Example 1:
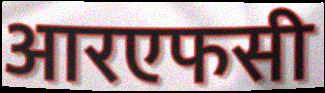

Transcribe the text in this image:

आरएफसी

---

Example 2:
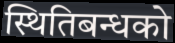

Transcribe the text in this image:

स्थितिबन्धको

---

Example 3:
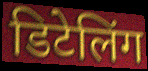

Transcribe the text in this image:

डिटेलिंग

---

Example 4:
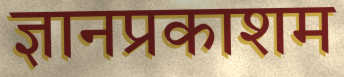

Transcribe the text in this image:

ज्ञानप्रकाशम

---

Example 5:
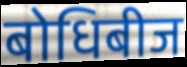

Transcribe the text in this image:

बोधिबीज